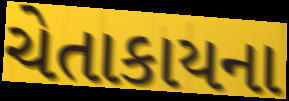
ચેતાકાયના